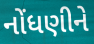
નોંધણીને